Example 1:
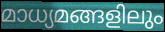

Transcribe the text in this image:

മാധ്യമങ്ങളിലും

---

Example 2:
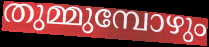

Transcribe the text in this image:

തുമ്മുമ്പോഴും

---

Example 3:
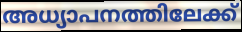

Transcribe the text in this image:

അധ്യാപനത്തിലേക്ക്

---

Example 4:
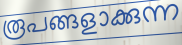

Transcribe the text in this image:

രൂപങ്ങളാക്കുന്ന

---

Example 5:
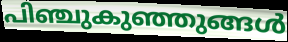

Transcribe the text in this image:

പിഞ്ചുകുഞ്ഞുങ്ങൾ